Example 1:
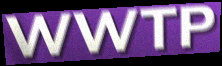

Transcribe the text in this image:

WWTP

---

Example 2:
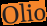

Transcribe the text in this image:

Olio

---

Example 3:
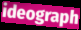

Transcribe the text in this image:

ideograph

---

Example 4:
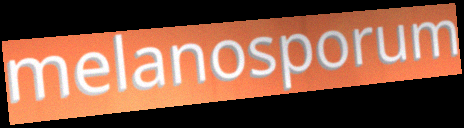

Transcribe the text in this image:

melanosporum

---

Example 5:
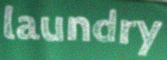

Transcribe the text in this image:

laundry